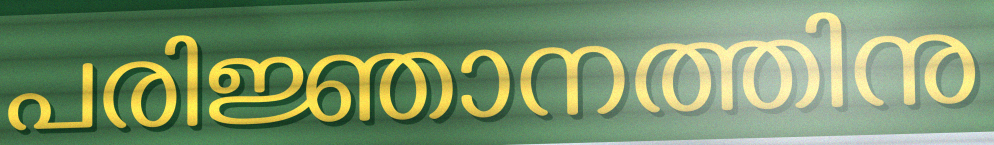
പരിജ്ഞാനത്തിനു